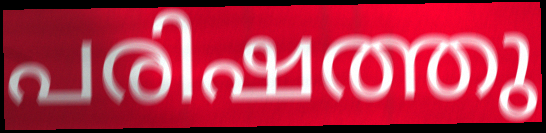
പരിഷത്തു